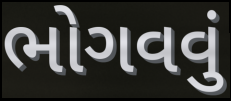
ભોગવવું